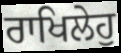
ਰਾਖਿਲੇਹੁ